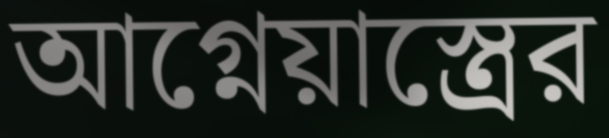
আগ্নেয়াস্ত্রের